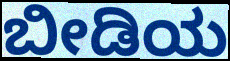
ಬೀಡಿಯ